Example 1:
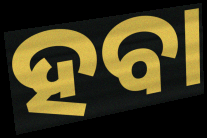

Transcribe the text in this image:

ହବା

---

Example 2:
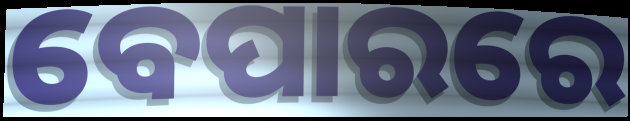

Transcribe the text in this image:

ବେପାରରେ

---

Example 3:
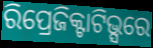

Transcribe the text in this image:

ରିପ୍ରେଜିକ୍ଟାଟିଭ୍ସରେ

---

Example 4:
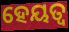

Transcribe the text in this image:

ହେୟତ୍ୱ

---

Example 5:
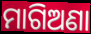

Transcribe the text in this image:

ମାଗିଅଣା